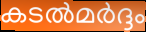
കടൽമർദ്ദം